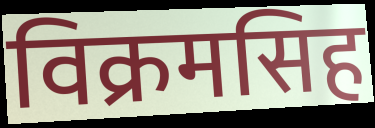
विक्रमसिह